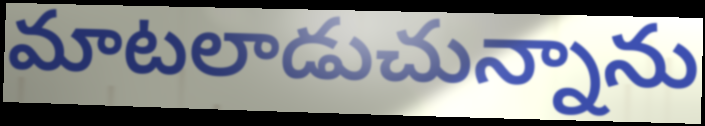
మాటలాడుచున్నాను